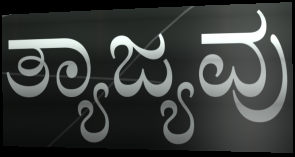
ತ್ಯಾಜ್ಯವು